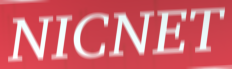
NICNET